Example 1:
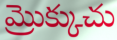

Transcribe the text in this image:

మ్రొక్కుచు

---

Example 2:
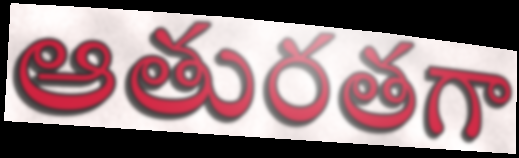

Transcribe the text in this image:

ఆతురతగా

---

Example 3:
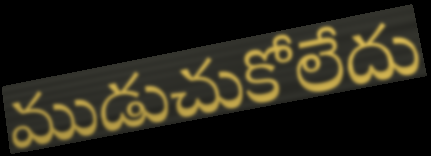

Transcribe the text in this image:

ముడుచుకోలేదు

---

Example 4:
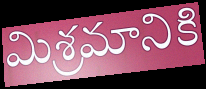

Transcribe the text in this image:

మిశ్రమానికి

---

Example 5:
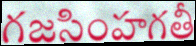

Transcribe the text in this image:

గజసింహగతీ